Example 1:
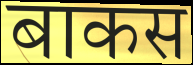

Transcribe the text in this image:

बाकस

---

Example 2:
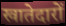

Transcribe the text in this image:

खातेदारों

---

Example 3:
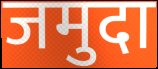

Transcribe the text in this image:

जमुदा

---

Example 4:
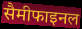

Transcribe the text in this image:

सैमीफाइनल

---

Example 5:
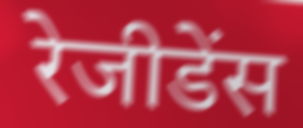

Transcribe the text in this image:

रेजीडेंस